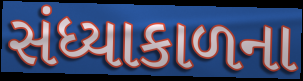
સંધ્યાકાળના